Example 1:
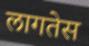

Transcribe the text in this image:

लागतेस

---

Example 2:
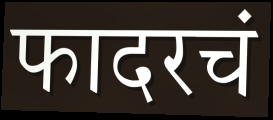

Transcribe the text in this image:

फादरचं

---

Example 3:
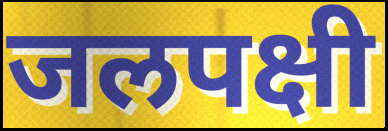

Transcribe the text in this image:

जलपक्षी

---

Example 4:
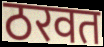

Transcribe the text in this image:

ठरवत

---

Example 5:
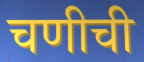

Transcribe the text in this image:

चणीची